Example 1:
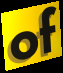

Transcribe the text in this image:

of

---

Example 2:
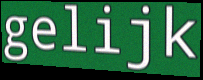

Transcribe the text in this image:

gelijk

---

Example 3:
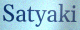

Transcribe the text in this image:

Satyaki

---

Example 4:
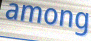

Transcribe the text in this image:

among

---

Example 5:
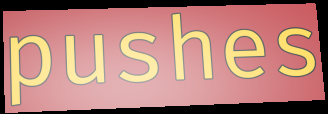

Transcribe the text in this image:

pushes